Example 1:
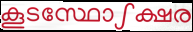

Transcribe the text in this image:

കൂടസ്ഥോഽക്ഷര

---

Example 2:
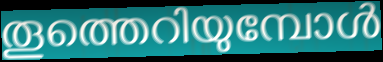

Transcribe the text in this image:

തൂത്തെറിയുമ്പോൾ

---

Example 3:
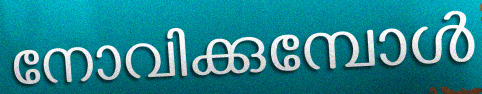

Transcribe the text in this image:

നോവിക്കുമ്പോൾ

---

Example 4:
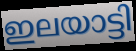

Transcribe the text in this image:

ഇലയാട്ടി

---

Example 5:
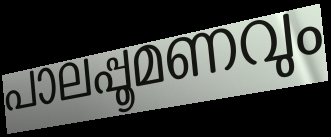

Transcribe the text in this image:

പാലപ്പൂമണവും